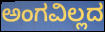
ಅಂಗವಿಲ್ಲದ